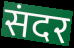
संदर